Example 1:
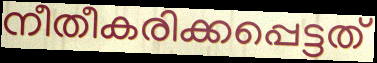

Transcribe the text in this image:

നീതീകരിക്കപ്പെട്ടത്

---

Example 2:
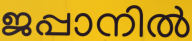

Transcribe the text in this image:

ജപ്പാനിൽ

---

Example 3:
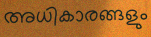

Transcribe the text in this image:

അധികാരങ്ങളും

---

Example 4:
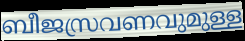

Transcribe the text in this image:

ബീജസ്രവണവുമുള്ള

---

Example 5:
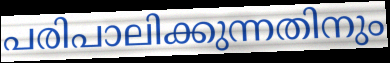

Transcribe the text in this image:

പരിപാലിക്കുന്നതിനും